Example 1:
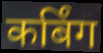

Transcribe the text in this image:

कर्बिंग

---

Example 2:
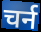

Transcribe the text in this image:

चर्न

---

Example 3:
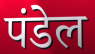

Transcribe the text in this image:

पंडेल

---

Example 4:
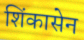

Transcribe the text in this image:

शिंकासेन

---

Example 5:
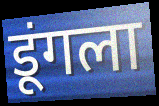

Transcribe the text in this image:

डूंगला